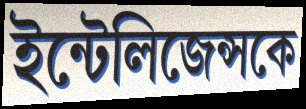
ইন্টেলিজেন্সকে